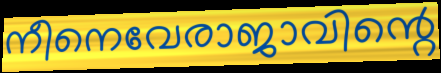
നീനെവേരാജാവിന്റെ